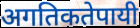
अगतिकतेपायी